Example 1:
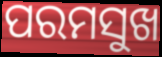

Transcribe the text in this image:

ପରମସୁଖ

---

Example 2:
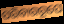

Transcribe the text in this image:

ପରିବାରରୂପେ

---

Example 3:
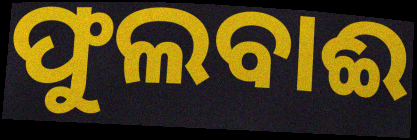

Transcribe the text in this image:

ଫୁଲବାଈ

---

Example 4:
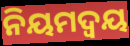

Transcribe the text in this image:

ନିୟମଦ୍ୱୟ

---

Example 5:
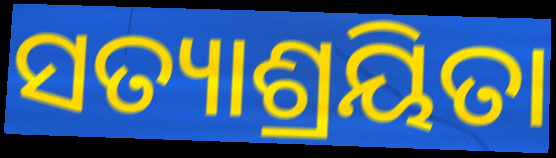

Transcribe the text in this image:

ସତ୍ୟାଶ୍ରୟିତା